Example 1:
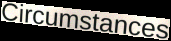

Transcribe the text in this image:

Circumstances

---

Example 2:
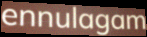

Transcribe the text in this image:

ennulagam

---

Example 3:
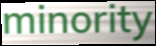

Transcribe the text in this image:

minority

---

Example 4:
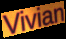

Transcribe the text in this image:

Vivian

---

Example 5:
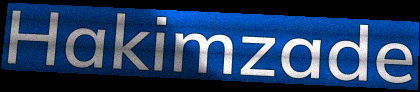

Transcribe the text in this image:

Hakimzade